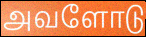
அவளோடு